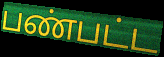
பண்பட்ட